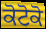
ਕੋਟੋਕੋ